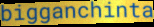
bigganchinta